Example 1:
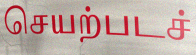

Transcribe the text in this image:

செயற்படச்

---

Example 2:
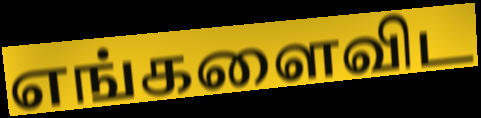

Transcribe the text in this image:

எங்களைவிட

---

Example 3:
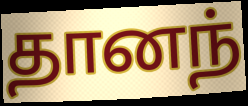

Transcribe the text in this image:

தானந்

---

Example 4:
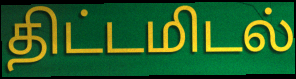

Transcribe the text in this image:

திட்டமிடல்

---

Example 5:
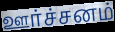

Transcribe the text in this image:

ஊர்ச்சனம்